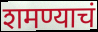
शमण्याचं